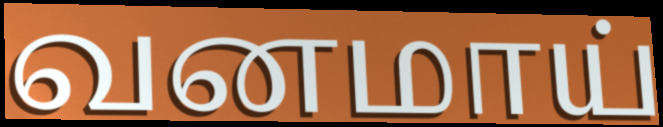
வனமாய்